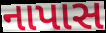
નાપાસ